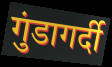
गुंडागर्दी